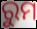
ରୁମ